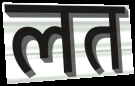
लत